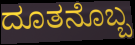
ದೂತನೊಬ್ಬ